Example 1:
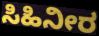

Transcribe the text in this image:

ಸಿಹಿನೀರ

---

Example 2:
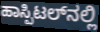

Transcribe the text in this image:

ಹಾಸ್ಪಿಟಲ್‌ನಲ್ಲಿ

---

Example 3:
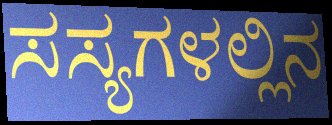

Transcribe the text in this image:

ಸಸ್ಯಗಳಲ್ಲಿನ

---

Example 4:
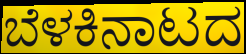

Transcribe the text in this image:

ಬೆಳಕಿನಾಟದ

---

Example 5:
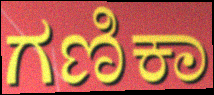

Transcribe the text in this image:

ಗಣಿಕಾ